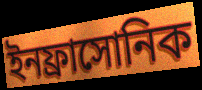
ইনফ্রাসোনিক